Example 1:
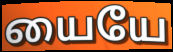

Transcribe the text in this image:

யையே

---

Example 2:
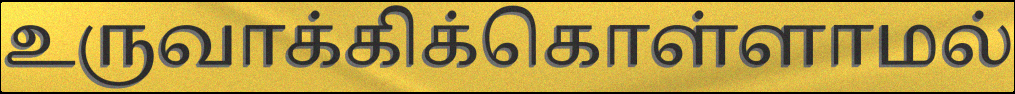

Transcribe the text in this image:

உருவாக்கிக்கொள்ளாமல்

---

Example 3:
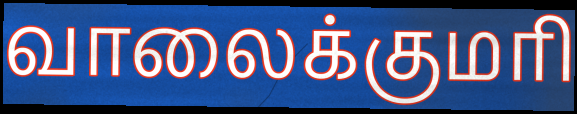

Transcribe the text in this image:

வாலைக்குமரி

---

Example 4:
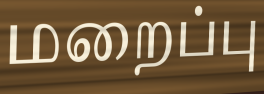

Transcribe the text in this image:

மறைப்பு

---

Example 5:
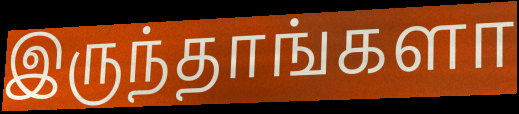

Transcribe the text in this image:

இருந்தாங்களா